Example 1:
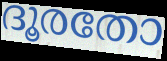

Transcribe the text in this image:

ദൂരതോ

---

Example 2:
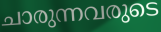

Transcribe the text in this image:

ചാരുന്നവരുടെ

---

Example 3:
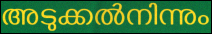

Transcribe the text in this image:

അടുക്കൽനിന്നും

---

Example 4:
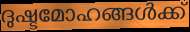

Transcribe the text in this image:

ദുഷ്ടമോഹങ്ങൾക്ക്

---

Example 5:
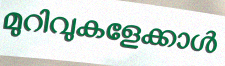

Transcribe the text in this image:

മുറിവുകളേക്കാൾ